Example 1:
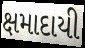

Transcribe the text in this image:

ક્ષમાદાયી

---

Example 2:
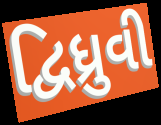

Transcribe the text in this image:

દ્વિધ્રુવી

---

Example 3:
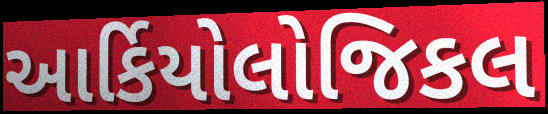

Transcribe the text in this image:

આર્કિયોલોજિકલ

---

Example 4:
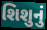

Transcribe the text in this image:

શિશુનું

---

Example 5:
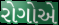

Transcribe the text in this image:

રોગોએ